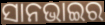
ସାନଭାଇର